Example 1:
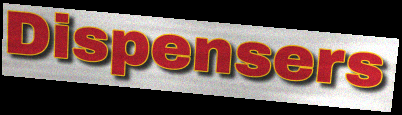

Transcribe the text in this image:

Dispensers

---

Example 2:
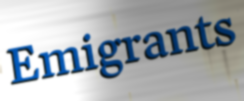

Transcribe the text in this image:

Emigrants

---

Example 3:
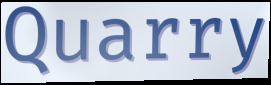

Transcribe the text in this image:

Quarry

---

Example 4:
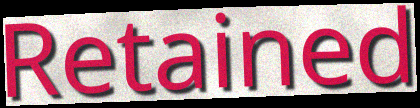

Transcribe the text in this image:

Retained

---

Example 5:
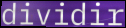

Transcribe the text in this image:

dividir